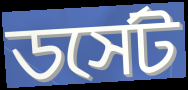
ডর্সেট